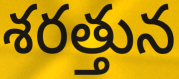
శరత్తున